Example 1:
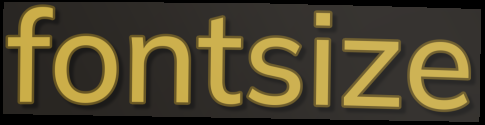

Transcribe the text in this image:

fontsize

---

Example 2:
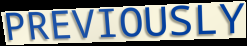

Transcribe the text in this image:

PREVIOUSLY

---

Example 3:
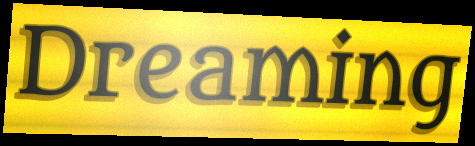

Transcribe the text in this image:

Dreaming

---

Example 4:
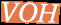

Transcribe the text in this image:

VOH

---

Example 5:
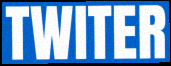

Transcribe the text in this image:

TWITER